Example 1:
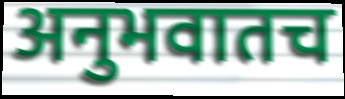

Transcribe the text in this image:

अनुभवातच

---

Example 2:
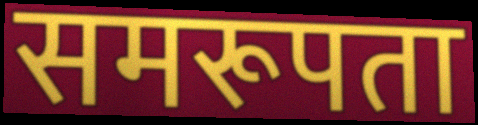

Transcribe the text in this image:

समरूपता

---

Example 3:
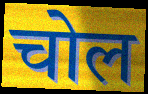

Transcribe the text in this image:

चोल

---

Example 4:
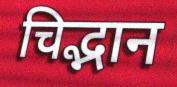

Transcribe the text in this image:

चिद्भान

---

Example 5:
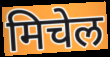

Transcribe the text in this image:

मिचेल